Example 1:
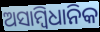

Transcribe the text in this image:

ଅସାମ୍ୱିଧାନିକ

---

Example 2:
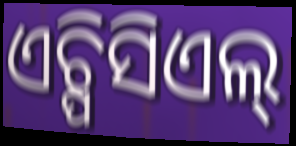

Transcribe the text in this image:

ଏଚ୍ପିସିଏଲ୍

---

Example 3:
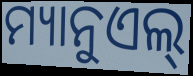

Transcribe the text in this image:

ମ୍ୟାନୁଏଲ୍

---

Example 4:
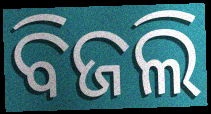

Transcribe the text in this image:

ବିଜଲି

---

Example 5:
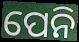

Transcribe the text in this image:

ପେନି